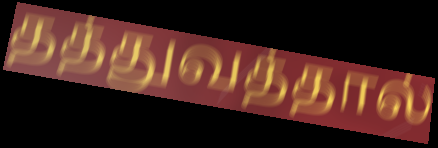
தத்துவத்தால்